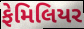
ફેમિલિયર